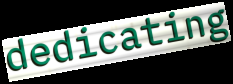
dedicating